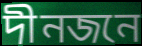
দীনজনে